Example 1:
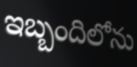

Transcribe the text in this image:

ఇబ్బందిలోను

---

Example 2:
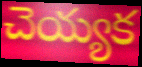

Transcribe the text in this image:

చెయ్యక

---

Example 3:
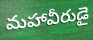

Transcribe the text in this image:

మహావీరుడై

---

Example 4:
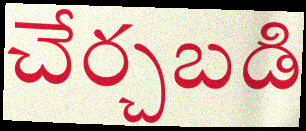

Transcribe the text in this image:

చేర్చబడి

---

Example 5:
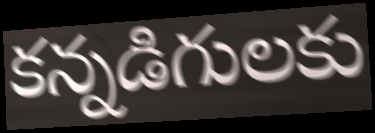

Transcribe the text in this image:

కన్నడిగులకు